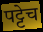
पट्टेच